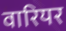
वारियर